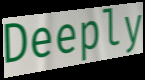
Deeply